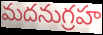
మదనుగ్రహ